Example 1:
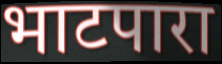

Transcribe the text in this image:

भाटपारा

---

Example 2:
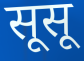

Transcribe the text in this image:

सूसू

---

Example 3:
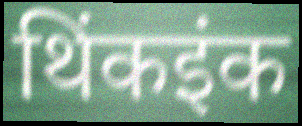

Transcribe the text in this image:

थिंकइंक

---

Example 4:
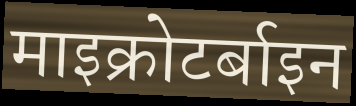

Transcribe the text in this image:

माइक्रोटर्बाइन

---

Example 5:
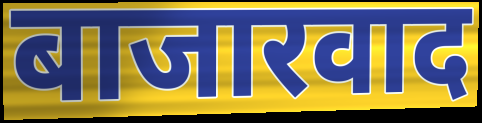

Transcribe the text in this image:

बाजारवाद